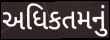
અધિકતમનું